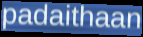
padaithaan